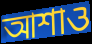
আশাও